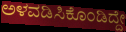
ಅಳವಡಿಸಿಕೊಂಡಿದ್ದೇ